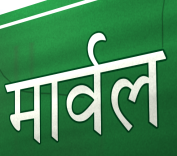
मार्वल